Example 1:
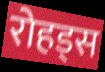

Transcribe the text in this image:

रोहड्स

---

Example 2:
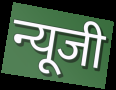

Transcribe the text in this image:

न्यूजी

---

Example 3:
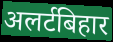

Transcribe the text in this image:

अलर्टबिहार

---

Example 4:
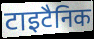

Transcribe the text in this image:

टाइटैनिक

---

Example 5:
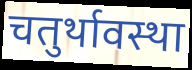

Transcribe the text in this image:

चतुर्थावस्था